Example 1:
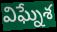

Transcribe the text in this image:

విఘ్నేశ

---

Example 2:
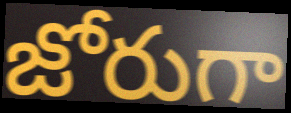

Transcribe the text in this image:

జోరుగా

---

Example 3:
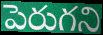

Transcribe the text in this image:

పెరుగని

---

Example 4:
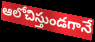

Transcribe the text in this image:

ఆలోచిస్తుండగానే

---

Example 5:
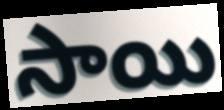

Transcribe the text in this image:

సాయి